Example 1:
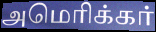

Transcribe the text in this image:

அமெரிக்கர்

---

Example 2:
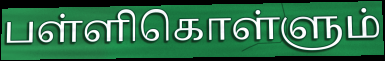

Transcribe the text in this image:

பள்ளிகொள்ளும்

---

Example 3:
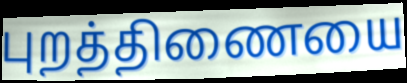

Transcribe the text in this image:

புறத்திணையை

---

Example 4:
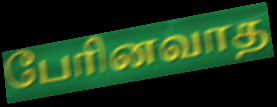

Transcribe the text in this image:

பேரினவாத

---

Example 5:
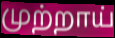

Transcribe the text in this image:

முற்றாய்